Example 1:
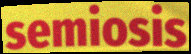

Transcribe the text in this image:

semiosis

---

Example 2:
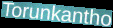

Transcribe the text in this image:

Torunkantho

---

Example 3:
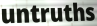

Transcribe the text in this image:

untruths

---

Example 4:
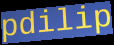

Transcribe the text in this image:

pdilip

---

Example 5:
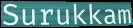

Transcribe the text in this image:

Surukkam